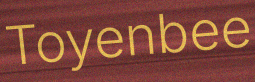
Toyenbee